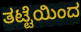
ತಟ್ಟೆಯಿಂದ